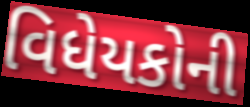
વિધેયકોની